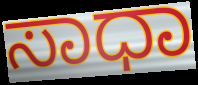
ಸಾಧಾ